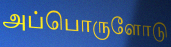
அப்பொருளோடு